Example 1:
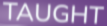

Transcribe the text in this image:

TAUGHT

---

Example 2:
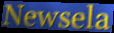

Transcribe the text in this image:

Newsela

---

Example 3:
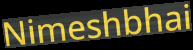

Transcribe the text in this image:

Nimeshbhai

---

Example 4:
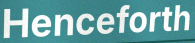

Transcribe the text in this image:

Henceforth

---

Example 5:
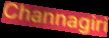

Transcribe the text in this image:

Channagiri